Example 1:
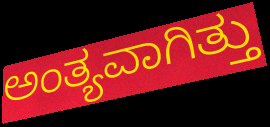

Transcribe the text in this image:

ಅಂತ್ಯವಾಗಿತ್ತು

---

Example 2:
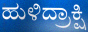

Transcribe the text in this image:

ಹುಳಿದ್ರಾಕ್ಷಿ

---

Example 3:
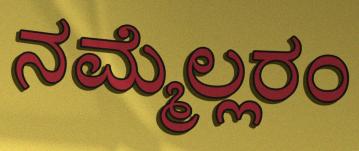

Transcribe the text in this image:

ನಮ್ಮೆಲ್ಲರಂ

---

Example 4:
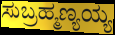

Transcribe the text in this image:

ಸುಬ್ರಹ್ಮಣ್ಯಯ್ಯ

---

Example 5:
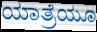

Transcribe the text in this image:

ಯಾತ್ರೆಯೂ